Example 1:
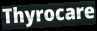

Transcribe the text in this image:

Thyrocare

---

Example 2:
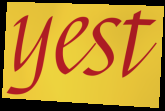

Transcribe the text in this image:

yest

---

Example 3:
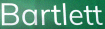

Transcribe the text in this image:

Bartlett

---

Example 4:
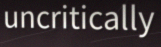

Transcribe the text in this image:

uncritically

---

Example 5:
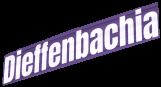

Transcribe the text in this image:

Dieffenbachia